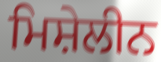
ਮਿਸ਼ੇਲੀਨ